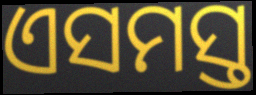
ଏସମସ୍ତ